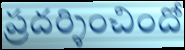
ప్రదర్శించిందో